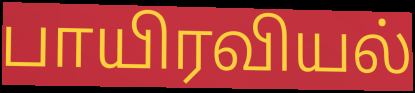
பாயிரவியல்